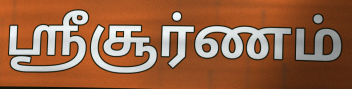
ஸ்ரீசூர்ணம்